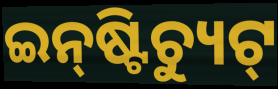
ଇନ୍‌ଷ୍ଟିଚ୍ୟୁଟ୍